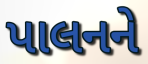
પાલનને